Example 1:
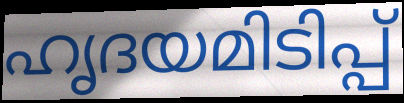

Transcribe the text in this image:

ഹൃദയമിടിപ്പ്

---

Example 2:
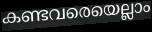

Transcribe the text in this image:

കണ്ടവരെയെല്ലാം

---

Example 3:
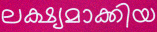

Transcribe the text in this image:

ലക്ഷ്യമാക്കിയ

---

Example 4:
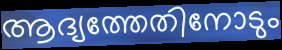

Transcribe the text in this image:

ആദ്യത്തേതിനോടും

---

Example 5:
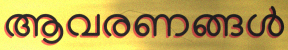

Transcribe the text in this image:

ആവരണങ്ങൾ